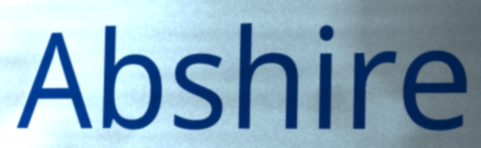
Abshire